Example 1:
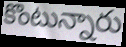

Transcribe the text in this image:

కొంటున్నారు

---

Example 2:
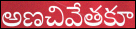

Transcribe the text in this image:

అణచివేతకూ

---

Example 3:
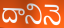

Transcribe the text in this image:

దానినె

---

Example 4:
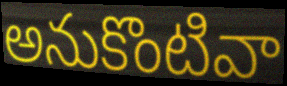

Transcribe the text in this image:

అనుకొంటివా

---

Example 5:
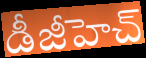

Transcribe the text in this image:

డీజీహెచ్